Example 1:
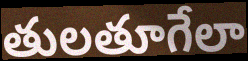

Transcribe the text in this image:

తులతూగేలా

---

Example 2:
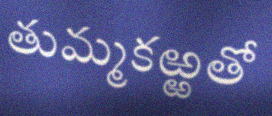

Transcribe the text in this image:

తుమ్మకఱ్ఱతో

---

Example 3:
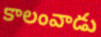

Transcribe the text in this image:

కాలంవాడు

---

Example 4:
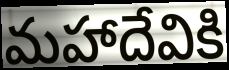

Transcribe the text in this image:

మహాదేవికి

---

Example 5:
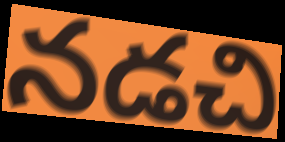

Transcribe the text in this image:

నడచి